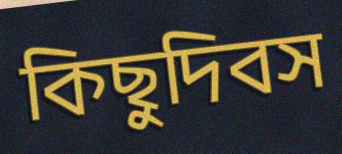
কিছুদিবস